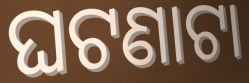
ଘଟଣାଟା